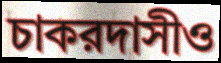
চাকরদাসীও